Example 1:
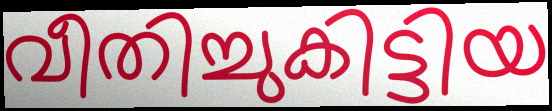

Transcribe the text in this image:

വീതിച്ചുകിട്ടിയ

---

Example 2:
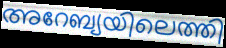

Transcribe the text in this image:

അറേബ്യയിലെത്തി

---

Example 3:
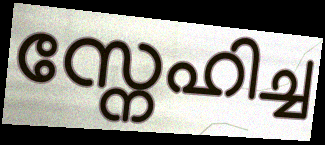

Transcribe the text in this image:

സ്നേഹിച്ച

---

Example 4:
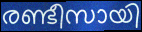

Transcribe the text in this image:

രണ്ടീസായി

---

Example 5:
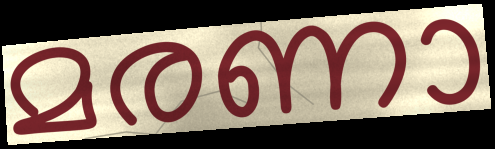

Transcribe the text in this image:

മരണാ